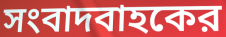
সংবাদবাহকের